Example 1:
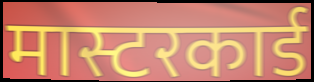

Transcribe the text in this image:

मास्टरकार्ड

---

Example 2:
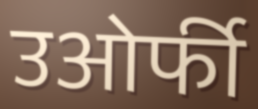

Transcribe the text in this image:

उओर्फी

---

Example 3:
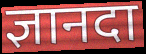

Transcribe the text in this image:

ज्ञानदा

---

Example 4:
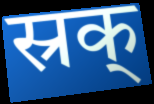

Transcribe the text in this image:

स्रक्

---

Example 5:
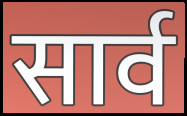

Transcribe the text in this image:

सार्व